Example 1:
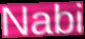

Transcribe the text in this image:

Nabi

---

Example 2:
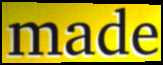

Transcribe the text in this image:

made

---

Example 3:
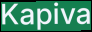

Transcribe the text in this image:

Kapiva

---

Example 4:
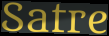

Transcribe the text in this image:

Satre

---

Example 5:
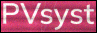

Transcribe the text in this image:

PVsyst